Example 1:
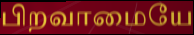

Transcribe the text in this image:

பிறவாமையே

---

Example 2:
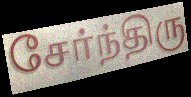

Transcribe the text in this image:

சேர்ந்திரு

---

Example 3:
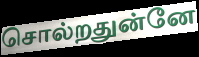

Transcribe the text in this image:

சொல்றதுன்னே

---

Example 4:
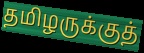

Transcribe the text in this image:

தமிழருக்குத்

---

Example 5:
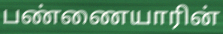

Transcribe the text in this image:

பண்ணையாரின்